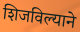
शिजविल्याने